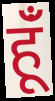
हूंँ